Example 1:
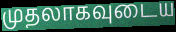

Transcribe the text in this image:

முதலாகவுடைய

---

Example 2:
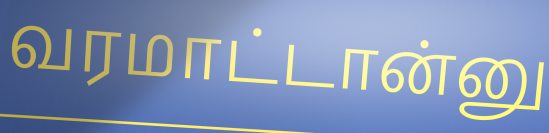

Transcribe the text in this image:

வரமாட்டான்னு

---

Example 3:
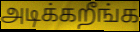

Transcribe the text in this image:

அடிக்கறீங்க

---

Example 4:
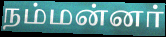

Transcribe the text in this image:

நம்மன்னர்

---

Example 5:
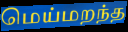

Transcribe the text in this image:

மெய்மறந்த